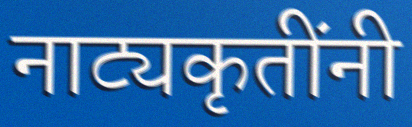
नाट्यकृतींनी